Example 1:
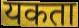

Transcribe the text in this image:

यकता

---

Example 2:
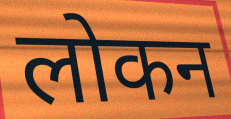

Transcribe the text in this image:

लोकन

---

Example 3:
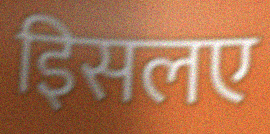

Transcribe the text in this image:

इिसलए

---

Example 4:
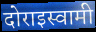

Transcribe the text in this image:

दोराइस्वामी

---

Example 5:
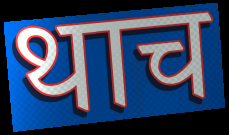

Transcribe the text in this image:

थाच